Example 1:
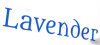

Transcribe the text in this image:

Lavender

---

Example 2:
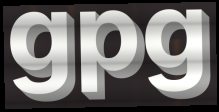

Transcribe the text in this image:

gpg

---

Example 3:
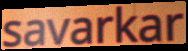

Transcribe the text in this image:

savarkar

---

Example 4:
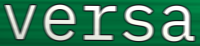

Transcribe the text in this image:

versa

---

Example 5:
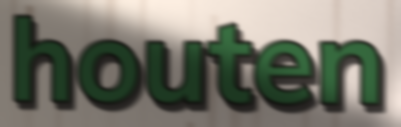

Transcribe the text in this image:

houten